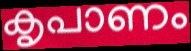
കൃപാണം